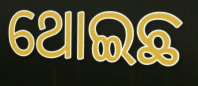
ଥୋଇଛ